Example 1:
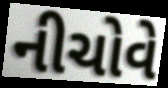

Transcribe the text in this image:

નીચોવે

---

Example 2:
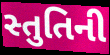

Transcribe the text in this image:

સ્તુતિની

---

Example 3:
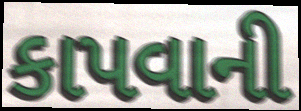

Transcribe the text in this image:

કાપવાની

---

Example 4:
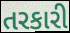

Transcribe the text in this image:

તરકારી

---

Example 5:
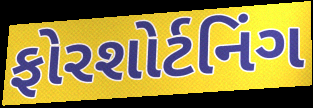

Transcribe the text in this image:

ફોરશોર્ટનિંગ